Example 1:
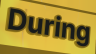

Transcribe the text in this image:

During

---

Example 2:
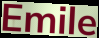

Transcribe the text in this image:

Emile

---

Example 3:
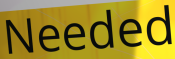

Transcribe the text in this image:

Needed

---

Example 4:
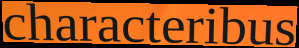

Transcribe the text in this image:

characteribus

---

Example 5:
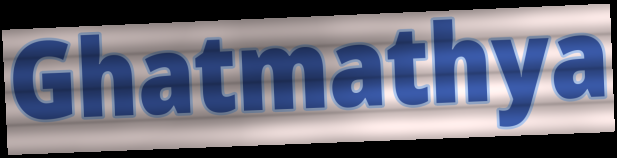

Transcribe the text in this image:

Ghatmathya